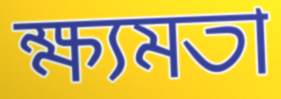
ক্ষ্যমতা